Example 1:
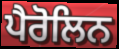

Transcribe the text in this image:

ਪੈਰੋਲਿਨ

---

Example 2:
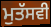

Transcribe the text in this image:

ਮੁਤੱਸਵੀ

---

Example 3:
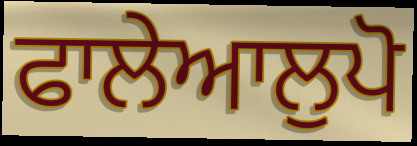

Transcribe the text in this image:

ਫਾਲੇਆਲੁਪੋ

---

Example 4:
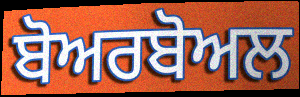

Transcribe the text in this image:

ਬੋਅਰਬੋਅਲ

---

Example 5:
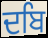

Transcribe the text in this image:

ਦਬਿ